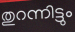
തുറന്നിട്ടും